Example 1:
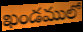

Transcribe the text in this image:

ఖండములో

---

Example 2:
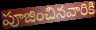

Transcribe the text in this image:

పూజించినవారికి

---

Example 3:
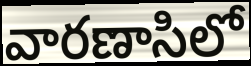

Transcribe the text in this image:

వారణాసిలో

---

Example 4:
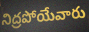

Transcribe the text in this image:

నిద్రపోయేవారు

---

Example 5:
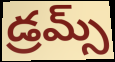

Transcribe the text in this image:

డ్రమ్స్